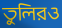
তুলিরও